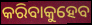
କରିବାକୁହେବ